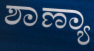
ಶಾಣ್ಯಾ